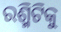
ରଶ୍ମିଟିକୁ